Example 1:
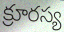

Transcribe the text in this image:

క్రూరస్య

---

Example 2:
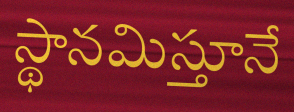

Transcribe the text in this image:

స్థానమిస్తూనే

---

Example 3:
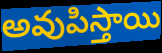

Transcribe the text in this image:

అవుపిస్తాయి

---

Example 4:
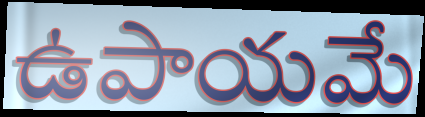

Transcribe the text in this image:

ఉపాయమే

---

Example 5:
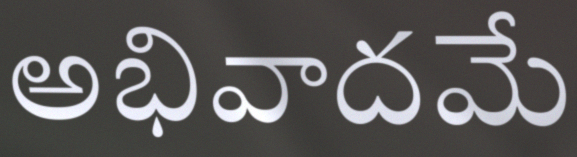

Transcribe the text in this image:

అభివాదమే